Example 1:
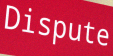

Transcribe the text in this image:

Dispute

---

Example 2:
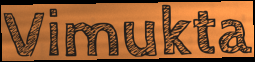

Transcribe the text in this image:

Vimukta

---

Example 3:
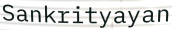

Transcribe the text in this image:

Sankrityayan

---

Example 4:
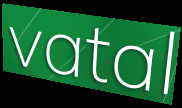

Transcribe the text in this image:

vatal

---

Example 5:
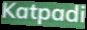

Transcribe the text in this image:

Katpadi